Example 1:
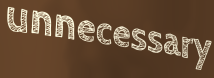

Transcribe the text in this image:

unnecessary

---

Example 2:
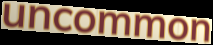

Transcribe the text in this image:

uncommon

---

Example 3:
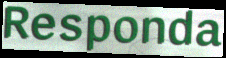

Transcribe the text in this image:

Responda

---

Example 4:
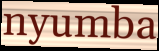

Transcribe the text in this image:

nyumba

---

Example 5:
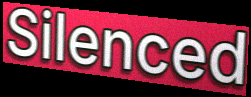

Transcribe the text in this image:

Silenced